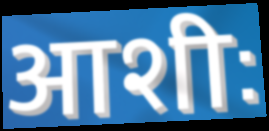
आशीः